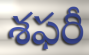
శఫరీ